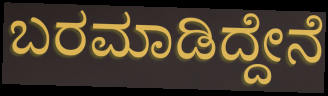
ಬರಮಾಡಿದ್ದೇನೆ